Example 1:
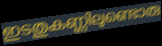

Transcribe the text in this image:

ഇടതുകണ്ണിലുണ്ടൊരു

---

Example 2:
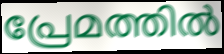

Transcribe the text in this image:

പ്രേമത്തിൽ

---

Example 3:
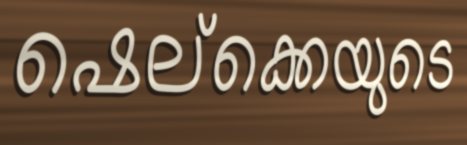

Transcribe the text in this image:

ഷെല്ക്കെയുടെ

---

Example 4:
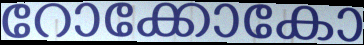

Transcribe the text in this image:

റോക്കോകോ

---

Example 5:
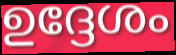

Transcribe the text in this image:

ഉദ്ദേശം